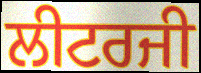
ਲੀਟਰਜੀ